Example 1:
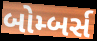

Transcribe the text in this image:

બોમ્બર્સ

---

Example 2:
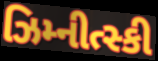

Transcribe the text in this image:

ઝિમ્નીત્સ્કી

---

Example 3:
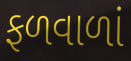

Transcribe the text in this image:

ફળવાળાં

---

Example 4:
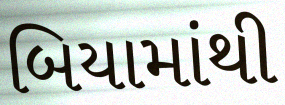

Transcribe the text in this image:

બિયામાંથી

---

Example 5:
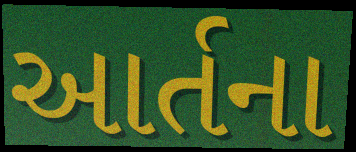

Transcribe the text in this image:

આર્તના